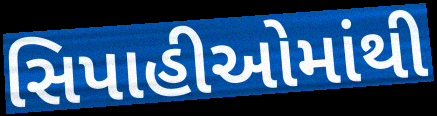
સિપાહીઓમાંથી